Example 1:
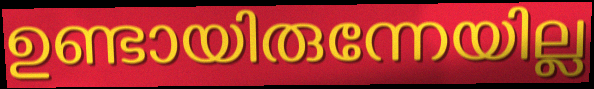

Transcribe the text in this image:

ഉണ്ടായിരുന്നേയില്ല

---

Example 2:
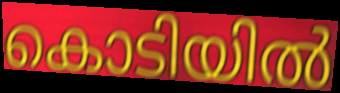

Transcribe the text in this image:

കൊടിയിൽ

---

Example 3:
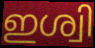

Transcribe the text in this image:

ഇശ്വി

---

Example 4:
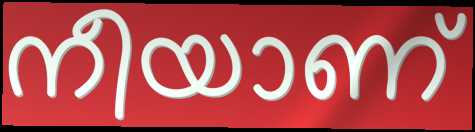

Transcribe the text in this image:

നീയാണ്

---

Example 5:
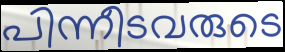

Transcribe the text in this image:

പിന്നീടവരുടെ